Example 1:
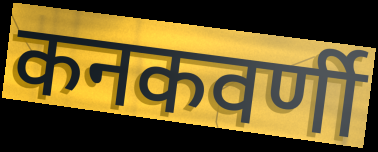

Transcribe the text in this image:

कनकवर्णी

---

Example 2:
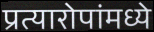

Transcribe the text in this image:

प्रत्यारोपांमध्ये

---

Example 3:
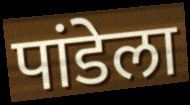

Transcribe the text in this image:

पांडेला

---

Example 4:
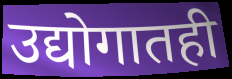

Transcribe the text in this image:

उद्योगातही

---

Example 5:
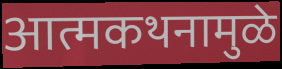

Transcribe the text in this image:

आत्मकथनामुळे